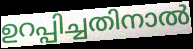
ഉറപ്പിച്ചതിനാൽ